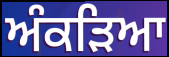
ਅੰਕੜਿਆ